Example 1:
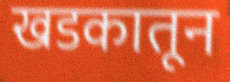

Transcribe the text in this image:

खडकातून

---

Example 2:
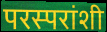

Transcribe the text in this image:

परस्परांशी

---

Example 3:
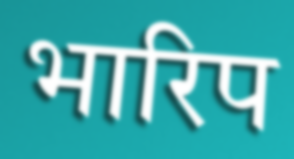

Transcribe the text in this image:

भारिप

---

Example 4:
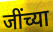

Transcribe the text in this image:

जींच्या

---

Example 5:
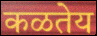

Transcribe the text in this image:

कळतेय